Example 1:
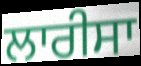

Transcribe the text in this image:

ਲਾਰੀਸਾ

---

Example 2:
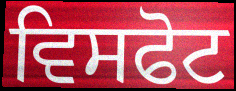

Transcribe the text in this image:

ਵਿਸਫੋਟ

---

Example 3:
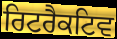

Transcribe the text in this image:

ਰਿਟਰੈਕਟਿਵ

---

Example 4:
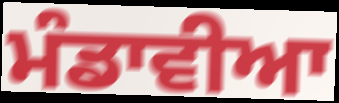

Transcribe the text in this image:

ਮੰਡਾਵੀਆ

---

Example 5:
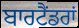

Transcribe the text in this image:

ਬਾਰਟੈਂਡਰਾਂ